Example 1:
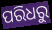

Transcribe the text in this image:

ପରିଧରୁ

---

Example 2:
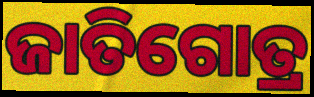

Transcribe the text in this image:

ଜାତିଗୋତ୍ର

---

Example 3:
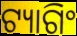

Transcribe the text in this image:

ଟ୍ୟାଗିଂ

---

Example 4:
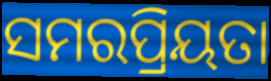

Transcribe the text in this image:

ସମରପ୍ରିୟତା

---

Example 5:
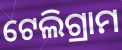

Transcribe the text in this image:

ଟେଲିଗ୍ରାମ